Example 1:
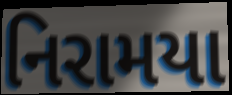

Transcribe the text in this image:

નિરામયા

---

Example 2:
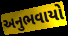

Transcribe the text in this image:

અનુભવાયો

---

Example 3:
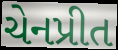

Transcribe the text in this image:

ચેનપ્રીત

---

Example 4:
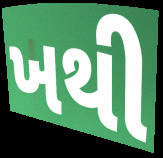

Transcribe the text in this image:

ખથી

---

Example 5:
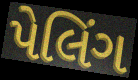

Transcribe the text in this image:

પેલિંગ